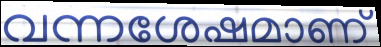
വന്നശേഷമാണ്